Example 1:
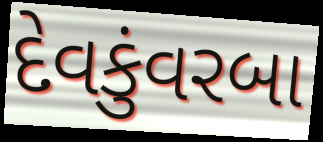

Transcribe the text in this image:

દેવકુંવરબા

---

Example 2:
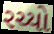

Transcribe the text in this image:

રચ્યો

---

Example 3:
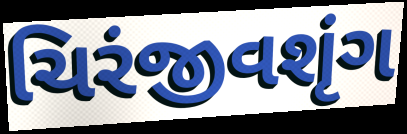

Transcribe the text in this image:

ચિરંજીવશૃંગ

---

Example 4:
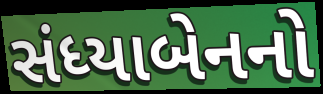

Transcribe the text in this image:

સંધ્યાબેનનો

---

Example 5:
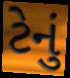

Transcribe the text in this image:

ટેનું